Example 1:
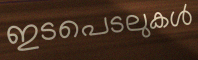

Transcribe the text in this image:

ഇടപെടലുകൾ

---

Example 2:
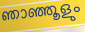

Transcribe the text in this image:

ഞാഞ്ഞൂളും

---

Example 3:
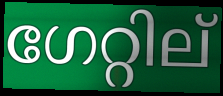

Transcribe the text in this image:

ഗേറ്റില്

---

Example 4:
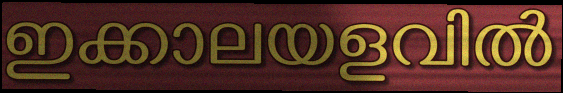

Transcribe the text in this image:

ഇക്കാലയളവിൽ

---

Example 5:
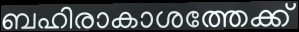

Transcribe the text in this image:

ബഹിരാകാശത്തേക്ക്